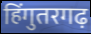
हिंगुतरगढ़